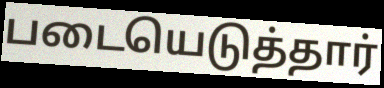
படையெடுத்தார்